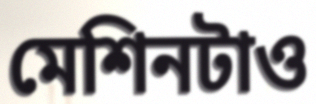
মেশিনটাও